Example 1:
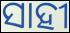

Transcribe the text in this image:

ସାହୀ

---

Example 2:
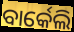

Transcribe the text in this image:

ବାର୍କେଲି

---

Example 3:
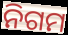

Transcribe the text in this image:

ନିଗମ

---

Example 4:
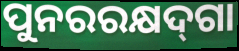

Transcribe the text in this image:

ପୁନରରକ୍ଷଦ୍‌ଗା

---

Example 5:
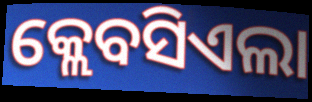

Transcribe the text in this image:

କ୍ଲେବସିଏଲା